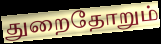
துறைதோறும்